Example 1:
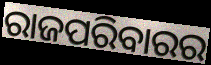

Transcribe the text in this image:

ରାଜପରିବାରର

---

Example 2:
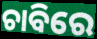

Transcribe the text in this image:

ଚାବିରେ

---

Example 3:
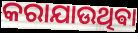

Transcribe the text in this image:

କରାଯାଉଥିଵା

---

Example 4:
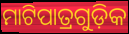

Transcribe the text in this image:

ମାଟିପାତ୍ରଗୁଡ଼ିକ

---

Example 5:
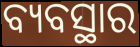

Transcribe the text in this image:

ବ୍ୟବସ୍ଥାର